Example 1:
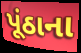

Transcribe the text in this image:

પૂંઠાના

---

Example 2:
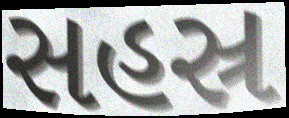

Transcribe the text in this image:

સહસ્ર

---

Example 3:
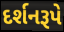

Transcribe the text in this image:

દર્શનરૂપે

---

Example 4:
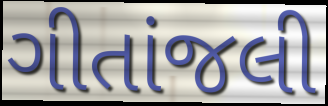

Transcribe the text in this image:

ગીતાંજલી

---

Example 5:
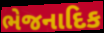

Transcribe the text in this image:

ભેજનાદિક